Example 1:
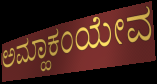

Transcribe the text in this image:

ಅಮ್ಹಾಕಂಯೇವ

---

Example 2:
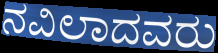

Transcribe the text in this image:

ನವಿಲಾದವರು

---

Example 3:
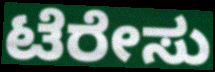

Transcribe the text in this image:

ಟೆರೇಸು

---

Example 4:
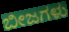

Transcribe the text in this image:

ಬೀಜಗಳು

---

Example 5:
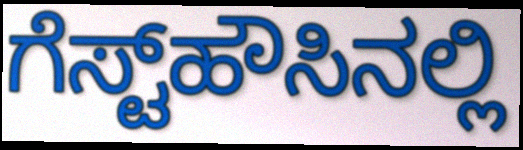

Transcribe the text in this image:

ಗೆಸ್ಟ್‌ಹೌಸಿನಲ್ಲಿ